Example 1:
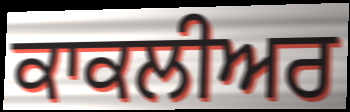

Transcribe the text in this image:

ਕਾਕਲੀਅਰ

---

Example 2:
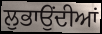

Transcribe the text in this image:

ਲੁਭਾਉਂਦੀਆਂ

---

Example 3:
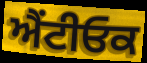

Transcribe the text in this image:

ਐਂਟੀਓਕ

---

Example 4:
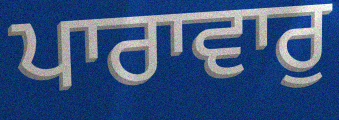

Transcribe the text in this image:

ਪਾਰਾਵਾਰੁ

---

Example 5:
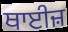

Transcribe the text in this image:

ਥਾਈਜ਼